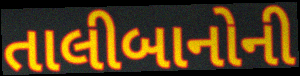
તાલીબાનોની